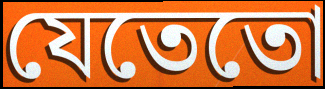
যেতেতো